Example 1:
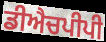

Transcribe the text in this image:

ਡੀਐਚਪੀਪੀ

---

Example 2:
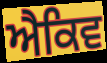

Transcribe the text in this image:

ਐਕਿਵ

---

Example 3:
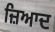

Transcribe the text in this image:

ਜ਼ਿਆਦ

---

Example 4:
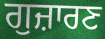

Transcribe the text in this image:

ਗੁਜ਼ਾਰਣ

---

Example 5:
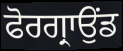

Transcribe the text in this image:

ਫੋਰਗ੍ਰਾਉਂਡ